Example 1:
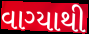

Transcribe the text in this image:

વાગ્યાથી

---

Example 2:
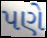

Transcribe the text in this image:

પણે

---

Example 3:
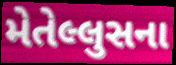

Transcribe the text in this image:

મેતેલ્લુસના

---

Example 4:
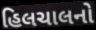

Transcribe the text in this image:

હિલચાલનો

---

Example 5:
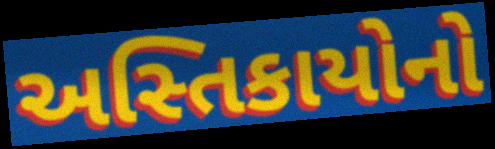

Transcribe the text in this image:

અસ્તિકાયોનો